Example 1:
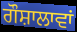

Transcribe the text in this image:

ਗੌਸ਼ਾਲਾਵਾਂ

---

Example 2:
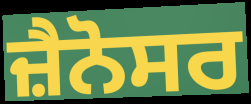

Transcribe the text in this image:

ਜ਼ੈਨੋਸਰ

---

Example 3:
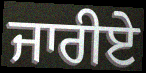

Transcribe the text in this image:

ਜਾਰੀਏ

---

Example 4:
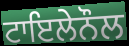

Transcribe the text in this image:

ਟਾਇਲੇਨੌਲ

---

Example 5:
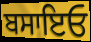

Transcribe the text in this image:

ਬਸਾਇਓ